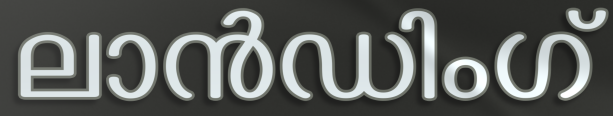
ലാൻഡിംഗ്